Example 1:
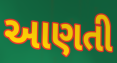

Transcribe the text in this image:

આણતી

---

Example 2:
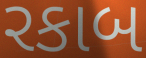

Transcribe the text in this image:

રકાબ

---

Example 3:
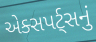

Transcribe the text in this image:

એક્સપર્ટ્સનું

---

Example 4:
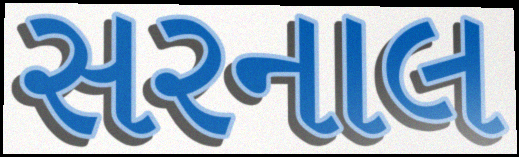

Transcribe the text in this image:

સરનાલ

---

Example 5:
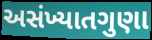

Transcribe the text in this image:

અસંખ્યાતગુણા